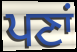
ਪਣਾਂ